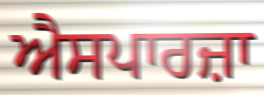
ਐਸਪਾਰਜ਼ਾ